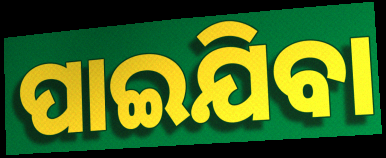
ପାଇଯିବା